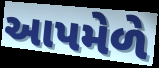
આપમેળે